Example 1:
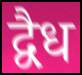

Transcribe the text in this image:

द्वैध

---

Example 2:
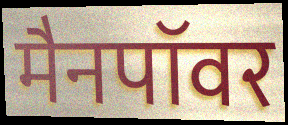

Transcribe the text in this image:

मैनपॉवर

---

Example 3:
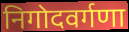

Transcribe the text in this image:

निगोदवर्गणा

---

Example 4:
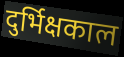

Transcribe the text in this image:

दुर्भिक्षकाल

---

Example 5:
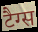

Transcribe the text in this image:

टैग्स